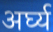
अर्घ्य